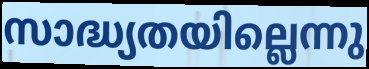
സാദ്ധ്യതയില്ലെന്നു